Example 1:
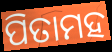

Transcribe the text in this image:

ପିତାମହ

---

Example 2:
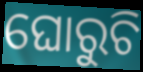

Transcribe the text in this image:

ଘୋରୁଚି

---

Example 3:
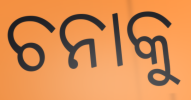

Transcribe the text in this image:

ଚନାକୁ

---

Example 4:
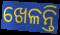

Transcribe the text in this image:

ଖେଳନ୍ତି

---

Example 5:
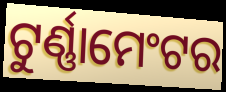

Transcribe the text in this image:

ଟୁର୍ଣ୍ଣାମେଂଟର